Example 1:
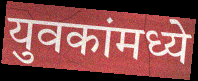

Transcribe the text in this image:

युवकांमध्ये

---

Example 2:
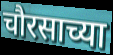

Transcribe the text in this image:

चौरसाच्या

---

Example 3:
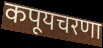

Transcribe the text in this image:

कपूयचरणा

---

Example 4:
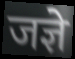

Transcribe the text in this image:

जज्ञे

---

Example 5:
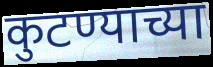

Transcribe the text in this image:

कुटण्याच्या